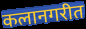
कलानगरीत